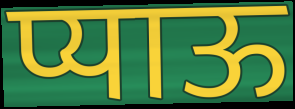
प्याऊ